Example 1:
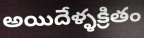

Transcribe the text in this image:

అయిదేళ్ళక్రితం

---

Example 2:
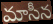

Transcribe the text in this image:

మాసీన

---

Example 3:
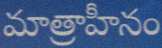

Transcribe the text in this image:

మాత్రాహీనం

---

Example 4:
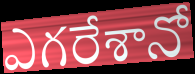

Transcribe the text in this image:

ఎగరేశానో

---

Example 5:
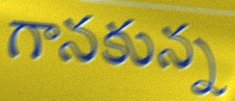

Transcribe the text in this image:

గానకున్న